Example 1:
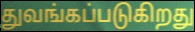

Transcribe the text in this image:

துவங்கப்படுகிறது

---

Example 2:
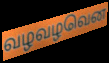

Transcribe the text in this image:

வழவழவென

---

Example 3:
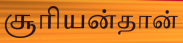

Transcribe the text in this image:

சூரியன்தான்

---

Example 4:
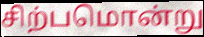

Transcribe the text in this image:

சிற்பமொன்று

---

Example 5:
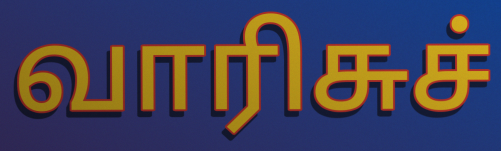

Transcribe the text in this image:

வாரிசுச்